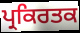
ਪ੍ਰਕਿਰਤਕ